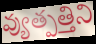
వ్యుత్పత్తిని